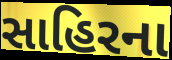
સાહિરના